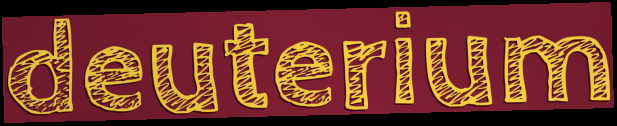
deuterium